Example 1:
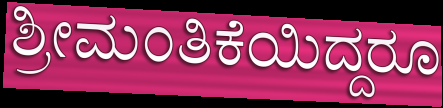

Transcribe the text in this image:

ಶ್ರೀಮಂತಿಕೆಯಿದ್ದರೂ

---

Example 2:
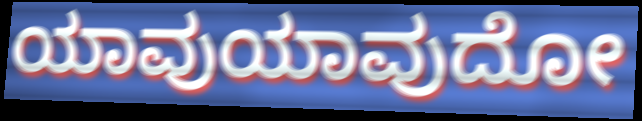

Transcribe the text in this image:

ಯಾವುಯಾವುದೋ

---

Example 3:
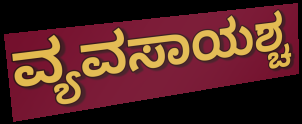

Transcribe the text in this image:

ವ್ಯವಸಾಯಶ್ಚ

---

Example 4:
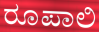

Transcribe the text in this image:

ರೂಪಾಲಿ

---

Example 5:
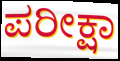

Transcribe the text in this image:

ಪರೀಕ್ಷಾ